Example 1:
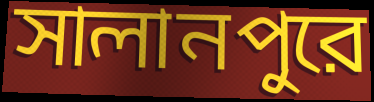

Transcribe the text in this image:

সালানপুরে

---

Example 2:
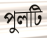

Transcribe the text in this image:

পুলটি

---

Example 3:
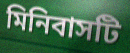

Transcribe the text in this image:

মিনিবাসটি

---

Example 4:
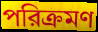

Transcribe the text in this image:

পরিক্রমণ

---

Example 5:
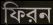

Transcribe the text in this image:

ফিরন